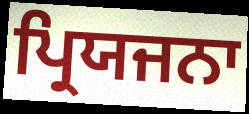
ਪ੍ਰਿਯਜਨਾ